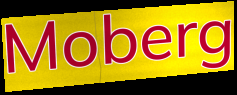
Moberg